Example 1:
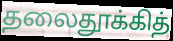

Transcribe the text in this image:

தலைதூக்கித்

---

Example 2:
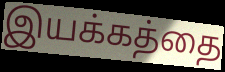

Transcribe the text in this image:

இயக்கத்தை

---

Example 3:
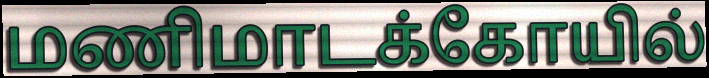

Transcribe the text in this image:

மணிமாடக்கோயில்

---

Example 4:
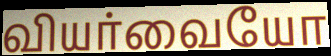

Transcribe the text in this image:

வியர்வையோ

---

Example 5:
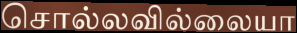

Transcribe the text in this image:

சொல்லவில்லையா